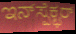
ಇನ್‌ಸ್ಪೆಕ್ಟರ್